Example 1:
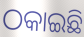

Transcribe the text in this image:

ଠକାଇଛି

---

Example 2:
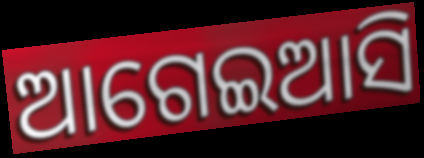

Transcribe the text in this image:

ଆଗେଇଆସି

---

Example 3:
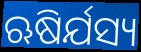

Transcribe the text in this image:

ଋଷିର୍ଯସ୍ୟ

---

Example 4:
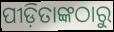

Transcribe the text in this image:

ପୀଡ଼ିତାଙ୍କଠାରୁ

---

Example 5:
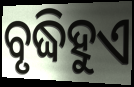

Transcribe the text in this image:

ବୃଦ୍ଧିହୁଏ